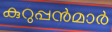
കുറുപ്പൻമാർ